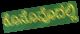
ಕೊಸೊವೊದಲ್ಲಿ